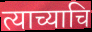
त्याच्याचि